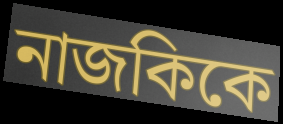
নাজকিকে